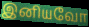
இனியவோ